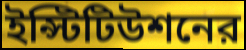
ইন্স্টিটিউশনের